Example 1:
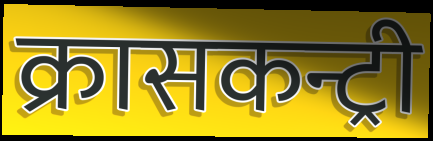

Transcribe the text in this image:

क्रासकन्ट्री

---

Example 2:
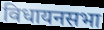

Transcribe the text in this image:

विधायनसभा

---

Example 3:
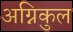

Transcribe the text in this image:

अग्निकुल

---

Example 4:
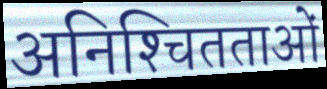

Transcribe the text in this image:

अनिश्‍चितताओं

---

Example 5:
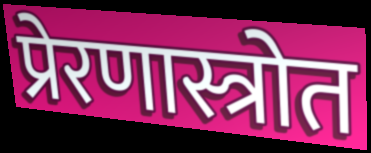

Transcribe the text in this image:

प्रेरणास्त्रोत